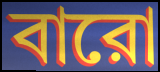
বারো